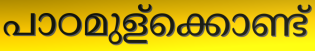
പാഠമുള്ക്കൊണ്ട്